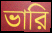
ভারি